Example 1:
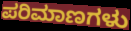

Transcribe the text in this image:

ಪರಿಮಾಣಗಳು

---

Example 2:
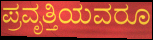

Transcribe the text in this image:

ಪ್ರವೃತ್ತಿಯವರೂ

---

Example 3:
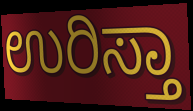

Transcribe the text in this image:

ಉರಿಸ್ತಾ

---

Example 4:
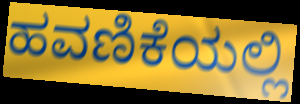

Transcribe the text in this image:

ಹವಣಿಕೆಯಲ್ಲಿ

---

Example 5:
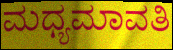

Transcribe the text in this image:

ಮಧ್ಯಮಾವತಿ